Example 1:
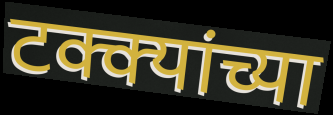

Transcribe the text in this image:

टक्क्यांच्या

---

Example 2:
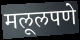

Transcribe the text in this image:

मलूलपणे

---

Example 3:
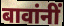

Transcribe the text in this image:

बावांनीं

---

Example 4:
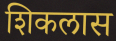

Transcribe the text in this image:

शिकलास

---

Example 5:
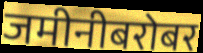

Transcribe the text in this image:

जमीनीबरोबर